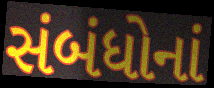
સંબંધોનાં